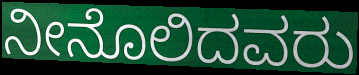
ನೀನೊಲಿದವರು